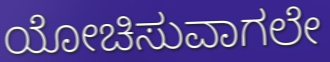
ಯೋಚಿಸುವಾಗಲೇ